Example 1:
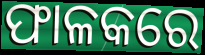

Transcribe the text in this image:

ଫାଳକରେ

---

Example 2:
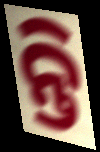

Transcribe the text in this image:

ନ୍ତି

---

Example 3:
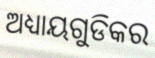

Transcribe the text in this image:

ଅଧ୍ୟାୟଗୁଡିକର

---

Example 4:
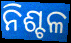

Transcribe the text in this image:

ନିଶ୍ଚଳ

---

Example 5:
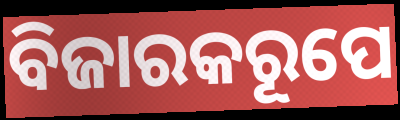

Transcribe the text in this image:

ବିଜାରକରୂପେ